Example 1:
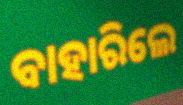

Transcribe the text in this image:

ବାହାରିଲେ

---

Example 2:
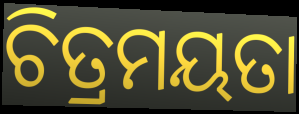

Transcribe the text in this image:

ଚିତ୍ରମୟତା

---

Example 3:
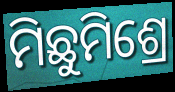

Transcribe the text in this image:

ମିଛୁମିଶ୍ରେ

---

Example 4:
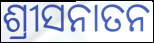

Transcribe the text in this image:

ଶ୍ରୀସନାତନ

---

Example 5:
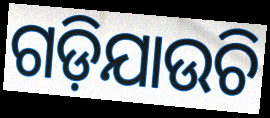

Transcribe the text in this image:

ଗଡ଼ିଯାଉଚି